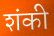
शंकी